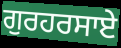
ਗੁਰਹਰਸਾਏ